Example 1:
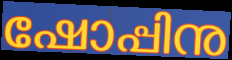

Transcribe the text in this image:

ഷോപ്പിനു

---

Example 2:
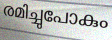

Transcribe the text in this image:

രമിച്ചുപോകും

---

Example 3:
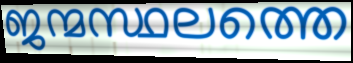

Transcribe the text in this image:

ജന്മസ്ഥലത്തെ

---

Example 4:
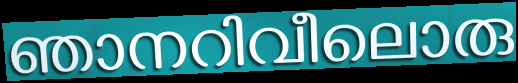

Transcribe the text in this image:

ഞാനറിവീലൊരു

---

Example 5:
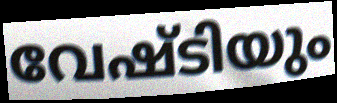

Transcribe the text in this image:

വേഷ്ടിയും